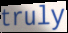
truly